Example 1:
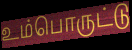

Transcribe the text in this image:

உம்பொருட்டு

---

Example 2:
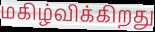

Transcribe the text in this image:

மகிழ்விக்கிறது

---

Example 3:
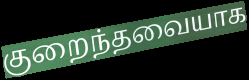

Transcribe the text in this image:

குறைந்தவையாக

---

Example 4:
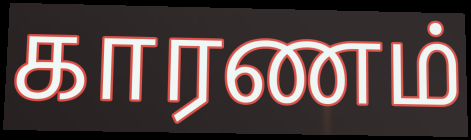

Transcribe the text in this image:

காரணம்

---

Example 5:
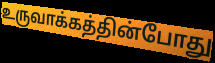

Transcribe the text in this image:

உருவாக்கத்தின்போது